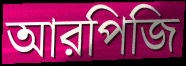
আরপিজি